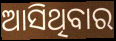
ଆସିଥିବାର